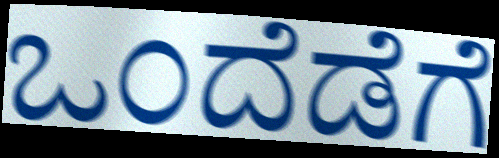
ಒಂದೆಡೆಗೆ